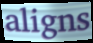
aligns